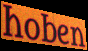
hoben